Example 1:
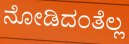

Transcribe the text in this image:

ನೋಡಿದಂತೆಲ್ಲ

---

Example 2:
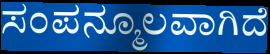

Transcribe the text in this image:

ಸಂಪನ್ಮೂಲವಾಗಿದೆ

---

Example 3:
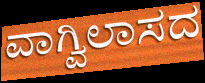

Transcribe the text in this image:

ವಾಗ್ವಿಲಾಸದ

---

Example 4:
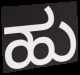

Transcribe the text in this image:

ಹು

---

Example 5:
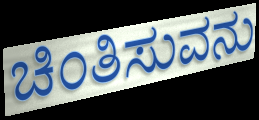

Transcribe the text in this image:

ಚಿಂತಿಸುವನು